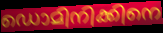
ഡൊമിനിക്കിനെ